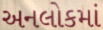
અનલોકમાં